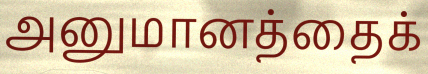
அனுமானத்தைக்